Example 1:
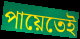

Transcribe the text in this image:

পায়েতেই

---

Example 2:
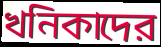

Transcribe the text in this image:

খনিকাদের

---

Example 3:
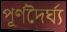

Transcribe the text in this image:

পূর্ণদৈর্ঘ্য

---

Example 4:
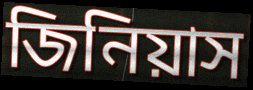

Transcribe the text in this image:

জিনিয়াস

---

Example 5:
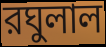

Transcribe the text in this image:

রঘুলাল